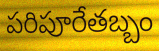
పరిపూరేతబ్బం